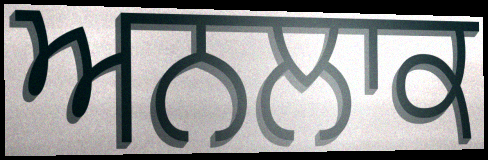
ਅਨਲਾਕ